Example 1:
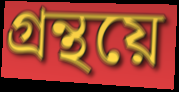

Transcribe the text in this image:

গ্ৰন্থয়ে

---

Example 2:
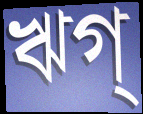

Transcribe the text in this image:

ঋগ্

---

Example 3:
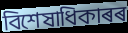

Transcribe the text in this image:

বিশেষাধিকাৰৰ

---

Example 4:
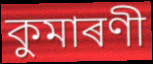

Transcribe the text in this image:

কুমাৰণী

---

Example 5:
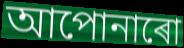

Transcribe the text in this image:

আপোনাৰো